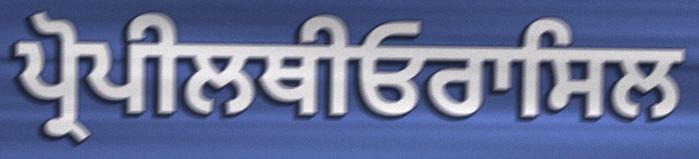
ਪ੍ਰੋਪੀਲਥੀਓਰਾਸਿਲ